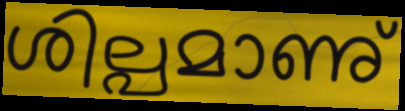
ശില്പമാണു്